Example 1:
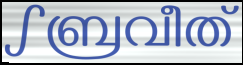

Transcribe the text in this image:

ഽബ്രവീത്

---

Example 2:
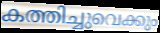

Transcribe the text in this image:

കത്തിച്ചുവെക്കും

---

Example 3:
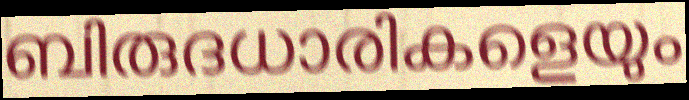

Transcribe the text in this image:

ബിരുദധാരികളെയും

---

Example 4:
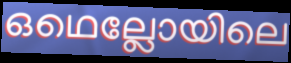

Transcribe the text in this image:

ഒഥെല്ലോയിലെ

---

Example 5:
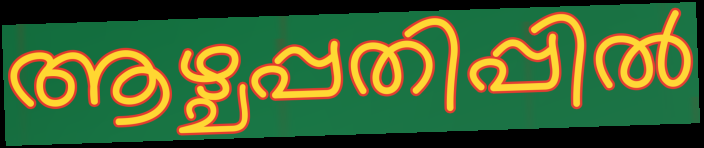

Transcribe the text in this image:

ആഴ്ചപ്പതിപ്പിൽ